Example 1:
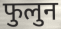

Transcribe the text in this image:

फुलुन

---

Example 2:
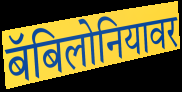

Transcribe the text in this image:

बॅबिलोनियावर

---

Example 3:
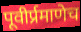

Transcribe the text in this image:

पूवीर्प्रमाणेच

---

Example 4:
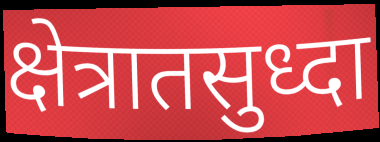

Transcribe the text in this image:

क्षेत्रातसुध्दा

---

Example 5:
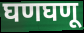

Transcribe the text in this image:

घणघणू